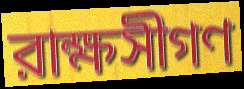
রাক্ষসীগণ